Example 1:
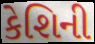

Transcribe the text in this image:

કેશિની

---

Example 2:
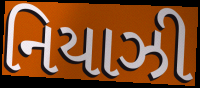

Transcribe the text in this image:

નિયાઝી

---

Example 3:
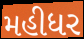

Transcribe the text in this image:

મહીધર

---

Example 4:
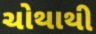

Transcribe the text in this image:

ચોથાથી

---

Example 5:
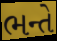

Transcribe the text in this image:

ભન્તે